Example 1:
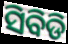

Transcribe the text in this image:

ସିବିଡି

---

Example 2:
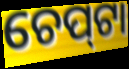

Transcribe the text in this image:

ଚେପ୍‍ଟା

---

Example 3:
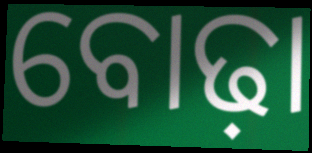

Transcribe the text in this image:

ବୋଢ଼ା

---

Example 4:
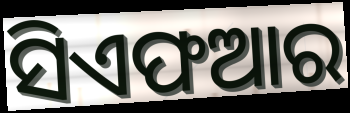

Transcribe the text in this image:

ସିଏଫଆର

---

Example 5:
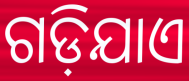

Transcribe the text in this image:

ଗଡ଼ିଯାଏ